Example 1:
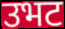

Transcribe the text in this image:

उभट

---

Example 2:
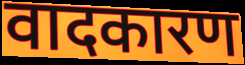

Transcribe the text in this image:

वादकारण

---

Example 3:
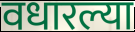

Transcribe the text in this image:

वधारल्या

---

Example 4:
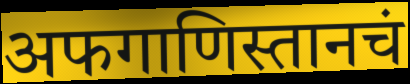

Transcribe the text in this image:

अफगाणिस्तानचं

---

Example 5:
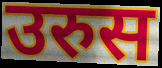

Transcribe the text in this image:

उरुस